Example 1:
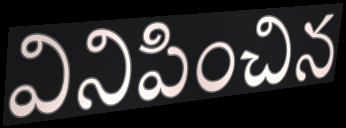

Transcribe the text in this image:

వినిపించిన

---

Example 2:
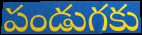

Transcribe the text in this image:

పండుగకు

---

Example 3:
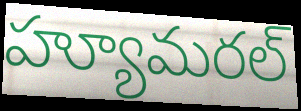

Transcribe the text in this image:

హ్యూమరల్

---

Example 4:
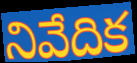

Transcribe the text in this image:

నివేదిక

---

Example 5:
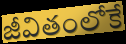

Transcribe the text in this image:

జీవితంలోకే